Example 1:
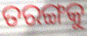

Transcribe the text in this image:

ତରଙ୍ଗକୁ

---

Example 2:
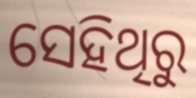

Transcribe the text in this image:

ସେହିଥିରୁ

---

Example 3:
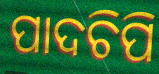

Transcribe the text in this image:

ପାଦଚିପି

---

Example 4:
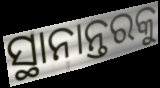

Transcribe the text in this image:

ସ୍ଥାନାନ୍ତରକୁ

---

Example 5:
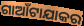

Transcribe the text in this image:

ଗାଆଁଟାଯାକର